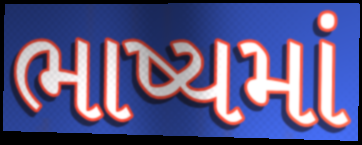
ભાષ્યમાં